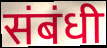
संबंधी